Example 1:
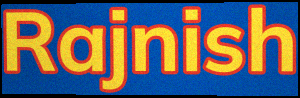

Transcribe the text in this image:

Rajnish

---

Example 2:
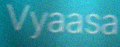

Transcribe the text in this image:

Vyaasa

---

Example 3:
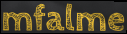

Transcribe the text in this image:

mfalme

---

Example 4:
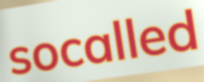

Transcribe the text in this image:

socalled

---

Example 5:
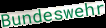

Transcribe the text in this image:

Bundeswehr